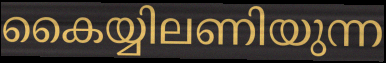
കൈയ്യിലണിയുന്ന